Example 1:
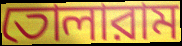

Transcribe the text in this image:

তোলারাম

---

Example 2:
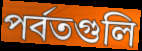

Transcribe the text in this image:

পর্বতগুলি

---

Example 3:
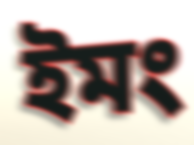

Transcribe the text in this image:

ইমং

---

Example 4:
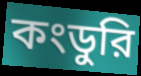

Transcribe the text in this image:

কংডুরি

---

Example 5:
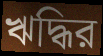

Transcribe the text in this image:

ঋদ্ধির